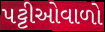
પટ્ટીઓવાળો